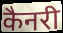
कैनरी